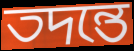
তদন্তে